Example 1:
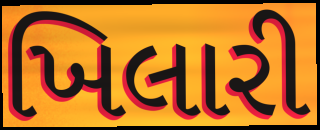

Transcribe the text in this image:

ખિલારી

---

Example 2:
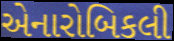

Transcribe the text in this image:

એનારોબિકલી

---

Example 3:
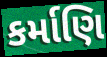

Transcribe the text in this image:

કર્માણિ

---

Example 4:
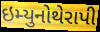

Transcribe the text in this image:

ઇમ્યુનોથેરાપી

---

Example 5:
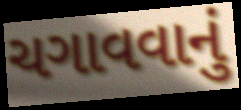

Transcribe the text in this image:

ચગાવવાનું